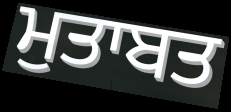
ਮੁਤਾਬਤ